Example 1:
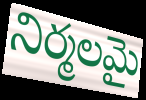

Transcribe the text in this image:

నిర్మలమై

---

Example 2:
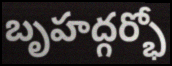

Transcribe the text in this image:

బృహద్గర్భో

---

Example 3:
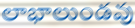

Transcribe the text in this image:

లాభాలుండవు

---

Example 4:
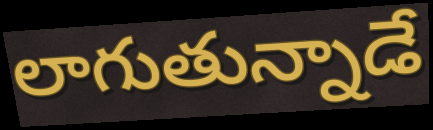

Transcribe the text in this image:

లాగుతున్నాడే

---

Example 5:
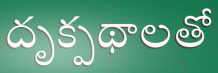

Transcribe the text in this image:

దృక్పథాలతో